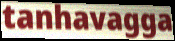
tanhavagga